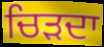
ਚਿੜਦਾ